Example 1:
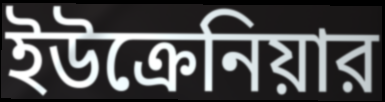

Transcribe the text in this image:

ইউক্রেনিয়ার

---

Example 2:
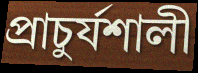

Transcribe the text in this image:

প্রাচুর্যশালী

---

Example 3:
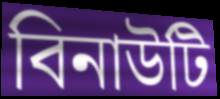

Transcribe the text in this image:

বিনাউটি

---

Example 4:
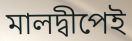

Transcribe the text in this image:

মালদ্বীপেই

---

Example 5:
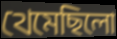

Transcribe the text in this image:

থেমেছিলো